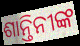
ଶାନ୍ତିନୀଙ୍କ